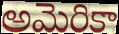
అమెరికా